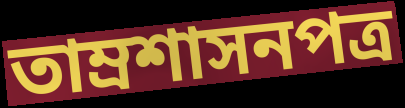
তাম্রশাসনপত্র